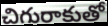
చిగురాకుతో